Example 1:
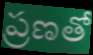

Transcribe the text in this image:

ప్రణతో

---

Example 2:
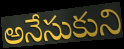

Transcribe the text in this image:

అనేసుకుని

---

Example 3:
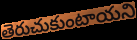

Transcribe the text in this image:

తెరుచుకుంటాయని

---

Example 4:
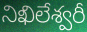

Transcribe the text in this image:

నిఖిలేశ్వరీ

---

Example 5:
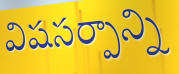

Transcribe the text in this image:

విషసర్పాన్ని